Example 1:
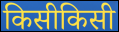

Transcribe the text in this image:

किसीकिसी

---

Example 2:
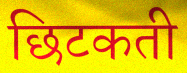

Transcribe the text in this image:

छिटकती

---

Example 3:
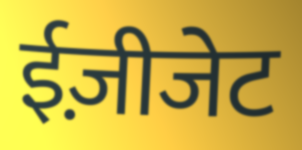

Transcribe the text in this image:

ईज़ीजेट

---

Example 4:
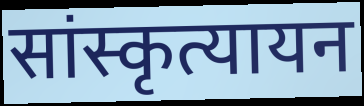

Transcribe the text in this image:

सांस्कृत्यायन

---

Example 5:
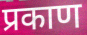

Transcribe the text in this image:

प्रकाण